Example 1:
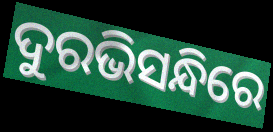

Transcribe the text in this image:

ଦୁରଭିସନ୍ଧିରେ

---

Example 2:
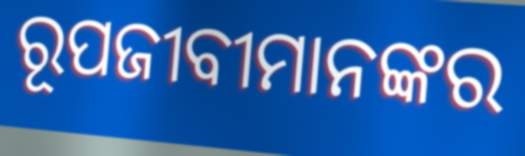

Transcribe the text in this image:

ରୂପଜୀବୀମାନଙ୍କର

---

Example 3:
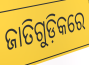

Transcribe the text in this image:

ଜାତିଗୁଡ଼ିକରେ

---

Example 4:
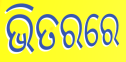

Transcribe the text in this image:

ଭିତରରେ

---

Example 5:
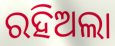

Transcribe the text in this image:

ରହିଅଲା